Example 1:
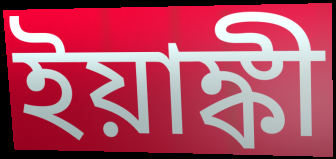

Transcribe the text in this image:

ইয়াঙ্কী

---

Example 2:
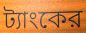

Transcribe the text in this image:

ট্যাংকের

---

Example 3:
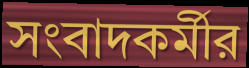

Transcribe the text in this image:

সংবাদকর্মীর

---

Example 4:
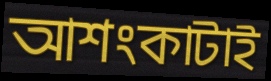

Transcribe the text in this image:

আশংকাটাই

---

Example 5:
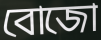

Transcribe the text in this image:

বোজো